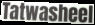
Tatwasheel